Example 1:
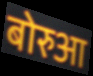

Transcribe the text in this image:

बोरुआ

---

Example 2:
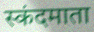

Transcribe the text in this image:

स्‍कंदमाता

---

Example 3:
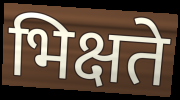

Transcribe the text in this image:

भिक्षते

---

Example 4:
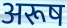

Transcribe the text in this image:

अरूष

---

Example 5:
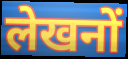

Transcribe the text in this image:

लेखनों